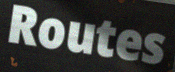
Routes